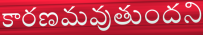
కారణమవుతుందని